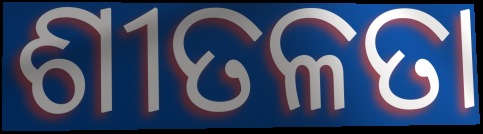
ଶୀତଳତା